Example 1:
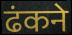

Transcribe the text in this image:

ढंकने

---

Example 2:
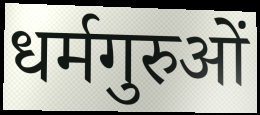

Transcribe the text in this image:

धर्मगुरुओं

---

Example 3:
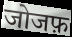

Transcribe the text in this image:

जोजफ़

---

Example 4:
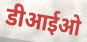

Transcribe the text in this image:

डीआईओ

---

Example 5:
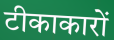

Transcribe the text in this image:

टीकाकारों